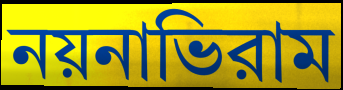
নয়নাভিরাম